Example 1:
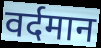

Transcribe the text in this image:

वर्दमान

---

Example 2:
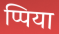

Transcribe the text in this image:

प्पिया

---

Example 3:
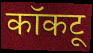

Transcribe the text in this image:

कॉकटू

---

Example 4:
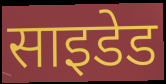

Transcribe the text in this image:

साइडेड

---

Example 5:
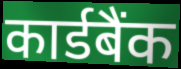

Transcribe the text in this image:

कार्डबैंक